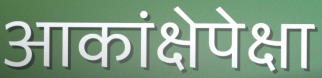
आकांक्षेपेक्षा